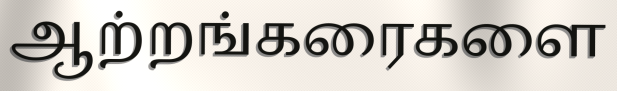
ஆற்றங்கரைகளை